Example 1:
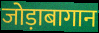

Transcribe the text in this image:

जोड़ाबागान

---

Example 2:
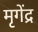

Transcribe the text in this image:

मृगेंद्र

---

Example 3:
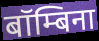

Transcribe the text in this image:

बॉम्बिना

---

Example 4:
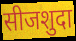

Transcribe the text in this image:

सीजशुदा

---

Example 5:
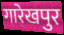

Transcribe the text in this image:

गारेखपुर